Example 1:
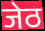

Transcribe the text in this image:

जेठ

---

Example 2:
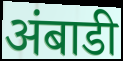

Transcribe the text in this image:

अंबाडी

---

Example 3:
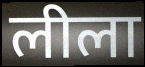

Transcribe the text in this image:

लीला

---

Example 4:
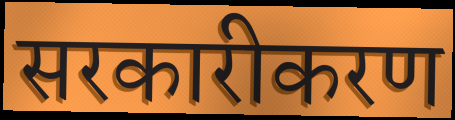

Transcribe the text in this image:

सरकारीकरण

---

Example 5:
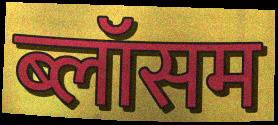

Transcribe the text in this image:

ब्लॉसम